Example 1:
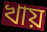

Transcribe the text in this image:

খায়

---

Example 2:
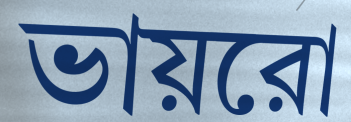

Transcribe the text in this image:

ভায়রো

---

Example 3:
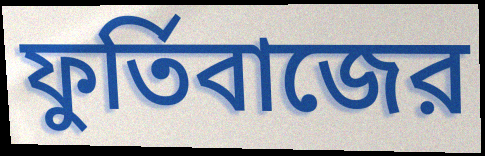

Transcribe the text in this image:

ফুর্তিবাজের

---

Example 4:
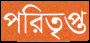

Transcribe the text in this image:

পরিতৃপ্ত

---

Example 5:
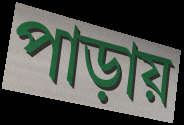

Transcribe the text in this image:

পাড়ায়